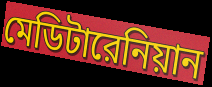
মেডিটারেনিয়ান